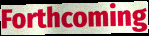
Forthcoming